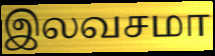
இலவசமா